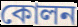
কোলন